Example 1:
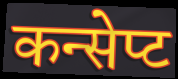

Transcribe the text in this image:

कन्सेप्ट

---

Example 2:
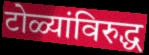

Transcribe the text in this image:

टोळ्यांविरुद्ध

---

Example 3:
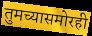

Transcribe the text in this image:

तुमच्यासमोरही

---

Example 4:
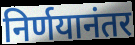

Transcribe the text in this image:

निर्णयानंतर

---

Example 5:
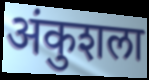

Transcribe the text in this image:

अंकुशला